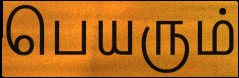
பெயரும்